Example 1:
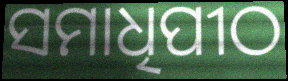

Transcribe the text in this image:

ସମାଧିପୀଠ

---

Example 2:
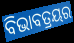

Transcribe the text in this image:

ବିଭାବତ୍ରୟର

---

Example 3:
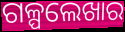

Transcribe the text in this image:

ଗଳ୍ପଲେଖାର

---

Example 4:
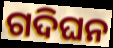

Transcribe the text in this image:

ଗଦିଘନ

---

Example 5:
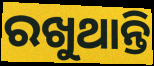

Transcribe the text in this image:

ରଖୁଥାନ୍ତି